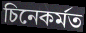
চিনেকৰ্মত